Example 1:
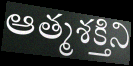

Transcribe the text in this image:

ఆత్మశక్తిని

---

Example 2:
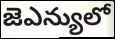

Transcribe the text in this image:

జెఎన్యులో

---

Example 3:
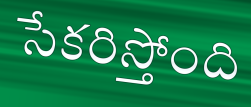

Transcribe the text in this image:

సేకరిస్తోంది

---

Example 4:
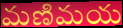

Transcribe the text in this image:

మణిమయ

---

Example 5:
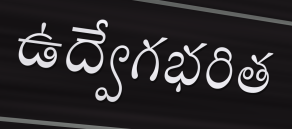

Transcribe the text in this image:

ఉద్వేగభరిత